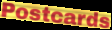
Postcards